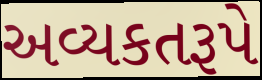
અવ્યકતરૂપે